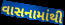
વાસનામાંથી